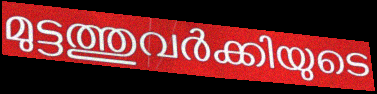
മുട്ടത്തുവർക്കിയുടെ